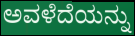
ಅವಳೆದೆಯನ್ನು